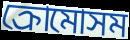
ক্রোমোসম